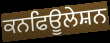
ਕਨਫਿਊਲੇਸ਼ਨ